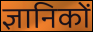
ज्ञानिकों